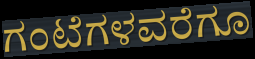
ಗಂಟೆಗಳವರೆಗೂ